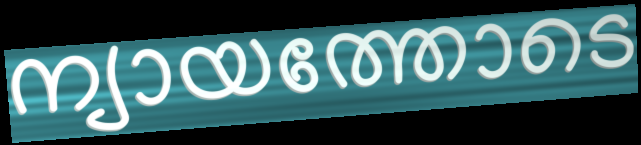
ന്യായത്തോടെ